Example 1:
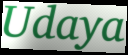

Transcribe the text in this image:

Udaya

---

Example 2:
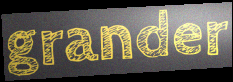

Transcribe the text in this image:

grander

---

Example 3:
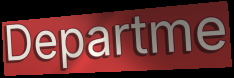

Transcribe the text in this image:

Departme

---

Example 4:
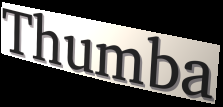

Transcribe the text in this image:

Thumba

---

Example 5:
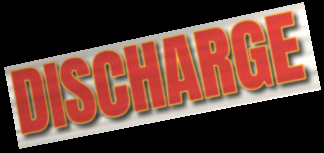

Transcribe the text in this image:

DISCHARGE